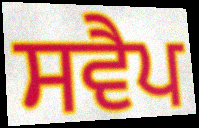
ਸਵੈਪ